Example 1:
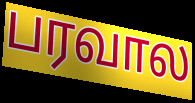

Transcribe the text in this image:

பரவால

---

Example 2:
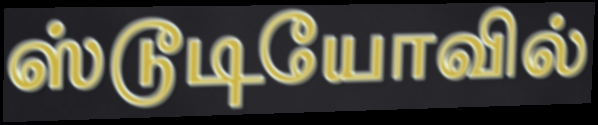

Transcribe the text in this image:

ஸ்டூடியோவில்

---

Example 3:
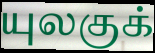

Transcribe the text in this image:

யுலகுக்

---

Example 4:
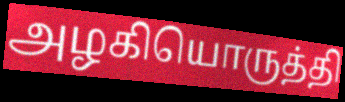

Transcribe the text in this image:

அழகியொருத்தி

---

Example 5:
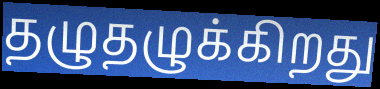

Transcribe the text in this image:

தழுதழுக்கிறது